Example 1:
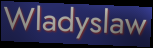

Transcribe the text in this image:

Wladyslaw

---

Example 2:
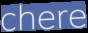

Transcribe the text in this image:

chere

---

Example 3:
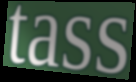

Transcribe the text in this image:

tass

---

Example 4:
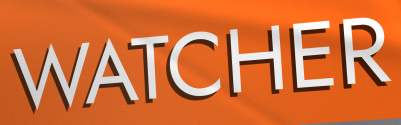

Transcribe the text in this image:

WATCHER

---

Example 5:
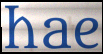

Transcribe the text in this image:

hae